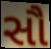
સૌ